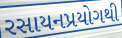
રસાયનપ્રયોગથી